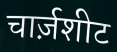
चार्ज़शीट